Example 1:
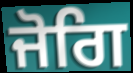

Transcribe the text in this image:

ਜੋਗਿ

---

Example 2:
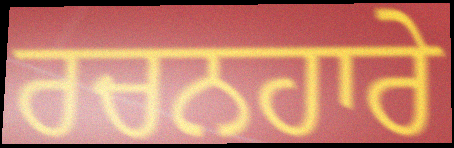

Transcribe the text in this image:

ਰਚਨਹਾਰੇ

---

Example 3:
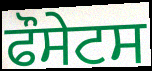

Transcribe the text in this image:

ਫੌਸੇਟਸ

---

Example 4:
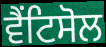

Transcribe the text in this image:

ਵੈਂਟਿਸੋਲ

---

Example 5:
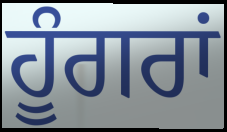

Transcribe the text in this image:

ਹੂੰਗਰਾਂ